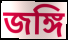
জঙ্গি